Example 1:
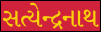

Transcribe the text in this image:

સત્યેન્દ્રનાથ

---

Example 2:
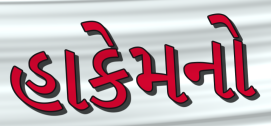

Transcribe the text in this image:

હાકેમનો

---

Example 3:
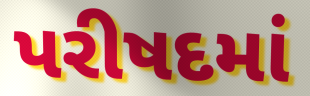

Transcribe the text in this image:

પરીષદમાં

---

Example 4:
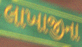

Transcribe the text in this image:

લાખાજીના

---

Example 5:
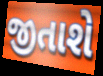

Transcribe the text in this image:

જીતાશે